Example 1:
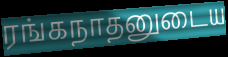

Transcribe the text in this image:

ரங்கநாதனுடைய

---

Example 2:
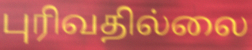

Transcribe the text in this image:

புரிவதில்லை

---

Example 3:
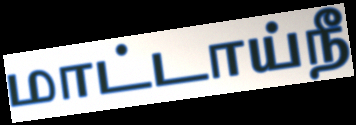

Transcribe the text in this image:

மாட்டாய்நீ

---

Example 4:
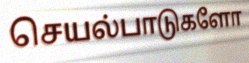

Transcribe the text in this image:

செயல்பாடுகளோ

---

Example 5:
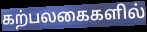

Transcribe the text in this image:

கற்பலகைகளில்